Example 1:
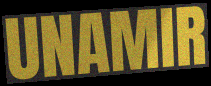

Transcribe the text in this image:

UNAMIR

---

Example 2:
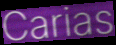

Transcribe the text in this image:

Carias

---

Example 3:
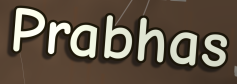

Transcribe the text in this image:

Prabhas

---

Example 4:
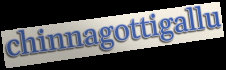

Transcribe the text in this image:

chinnagottigallu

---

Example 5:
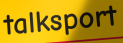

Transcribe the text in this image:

talksport